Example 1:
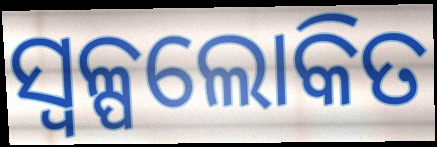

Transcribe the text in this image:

ସ୍ୱଳ୍ପଲୋକିତ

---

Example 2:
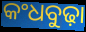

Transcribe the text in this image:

କଂଧବୁଢ଼ା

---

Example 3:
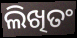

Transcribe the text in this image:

ଲିଖିତଂ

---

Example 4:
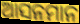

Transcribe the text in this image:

ଆସନମାନ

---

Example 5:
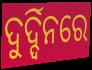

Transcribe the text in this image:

ଦୁର୍ଦ୍ଦିନରେ